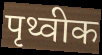
पृथ्वीक